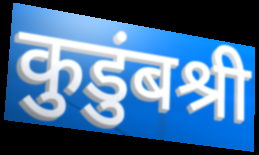
कुडुंबश्री